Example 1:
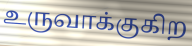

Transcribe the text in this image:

உருவாக்குகிற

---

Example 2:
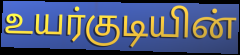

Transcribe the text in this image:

உயர்குடியின்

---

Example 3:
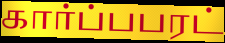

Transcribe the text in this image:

கார்ப்பபரட்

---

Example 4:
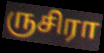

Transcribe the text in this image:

ருசிரா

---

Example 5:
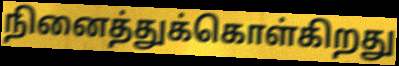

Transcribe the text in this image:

நினைத்துக்கொள்கிறது